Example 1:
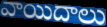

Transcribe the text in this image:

వాయిదాలు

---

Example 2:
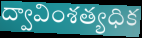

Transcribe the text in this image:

ద్వావింశత్యధిక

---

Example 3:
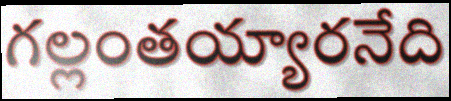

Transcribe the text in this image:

గల్లంతయ్యారనేది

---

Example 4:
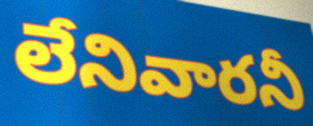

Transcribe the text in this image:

లేనివారనీ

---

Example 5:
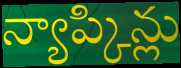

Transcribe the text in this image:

న్యాప్కిన్లు